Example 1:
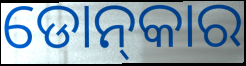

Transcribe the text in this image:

ଡୋନ୍‍କାର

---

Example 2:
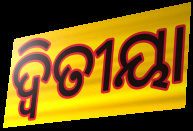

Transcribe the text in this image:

ଦ୍ବିତୀୟା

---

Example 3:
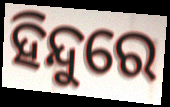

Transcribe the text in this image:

ହିନ୍ଦୁରେ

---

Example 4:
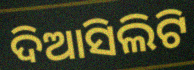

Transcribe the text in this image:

ଦିଆସିଲିଟି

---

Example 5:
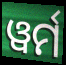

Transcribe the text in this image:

ୱର୍ମ